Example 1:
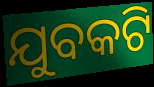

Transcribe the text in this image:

ଯୁବକଟି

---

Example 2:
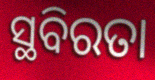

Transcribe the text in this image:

ସ୍ଥବିରତା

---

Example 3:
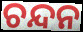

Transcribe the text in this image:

ଚନ୍ଦନ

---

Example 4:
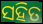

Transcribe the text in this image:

ସହିତ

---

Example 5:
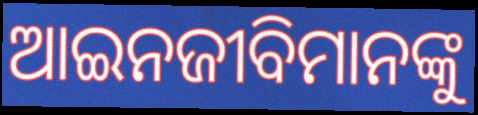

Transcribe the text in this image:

ଆଇନଜୀବିମାନଙ୍କୁ